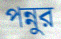
পন্নুর